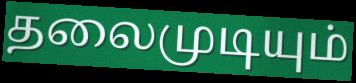
தலைமுடியும்